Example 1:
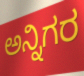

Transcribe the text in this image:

ಅನ್ನಿಗರ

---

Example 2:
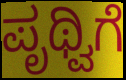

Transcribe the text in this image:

ಪೃಥ್ವಿಗೆ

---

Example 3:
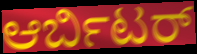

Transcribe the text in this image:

ಆರ್ಬಿಟರ್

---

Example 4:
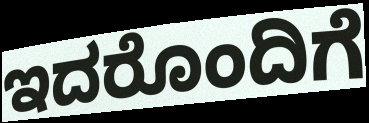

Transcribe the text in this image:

ಇದರೊಂದಿಗೆ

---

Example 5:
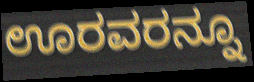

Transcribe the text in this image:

ಊರವರನ್ನೂ